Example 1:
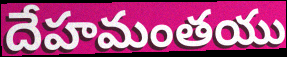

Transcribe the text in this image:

దేహమంతయు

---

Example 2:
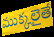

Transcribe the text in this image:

ముక్కలైతే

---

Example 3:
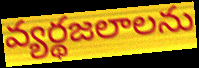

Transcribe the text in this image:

వ్యర్థజలాలను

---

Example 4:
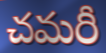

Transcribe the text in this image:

చమరీ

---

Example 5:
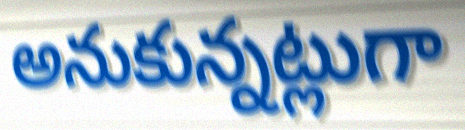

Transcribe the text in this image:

అనుకున్నట్లుగా